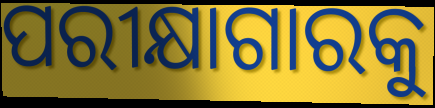
ପରୀକ୍ଷାଗାରକୁ